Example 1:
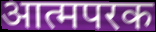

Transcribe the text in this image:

आत्मपरक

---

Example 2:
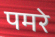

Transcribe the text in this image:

पमरे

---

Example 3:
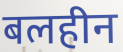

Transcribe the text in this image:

बलहीन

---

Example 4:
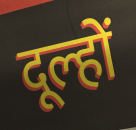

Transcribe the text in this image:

दूल्‍हों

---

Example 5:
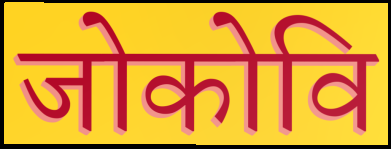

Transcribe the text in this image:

जोकोवि